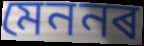
মেননৰ